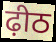
ढ़ीठ